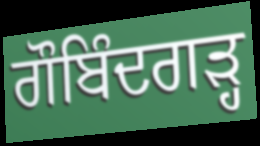
ਗੌਬਿੰਦਗੜ੍ਹ